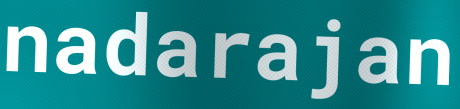
nadarajan